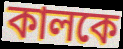
কালকে